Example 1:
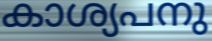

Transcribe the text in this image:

കാശ്യപനു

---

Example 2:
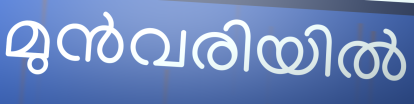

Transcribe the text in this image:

മുൻവരിയിൽ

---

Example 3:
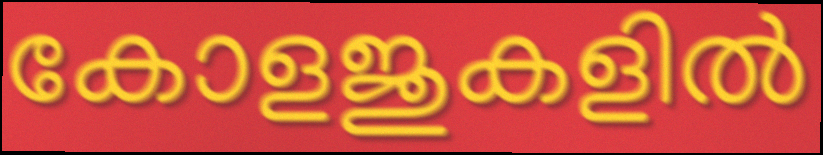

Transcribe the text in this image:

കോളജുകളിൽ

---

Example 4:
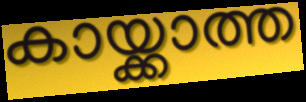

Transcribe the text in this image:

കായ്ക്കാത്ത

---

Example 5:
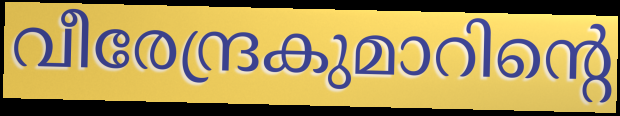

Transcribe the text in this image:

വീരേന്ദ്രകുമാറിന്റെ